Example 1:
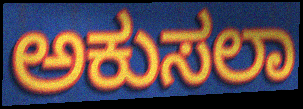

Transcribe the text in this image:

ಅಕುಸಲಾ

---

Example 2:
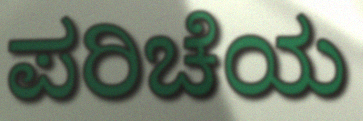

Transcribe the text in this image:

ಪರಿಚೆಯ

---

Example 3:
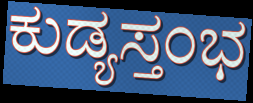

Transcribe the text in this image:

ಕುಡ್ಯಸ್ತಂಭ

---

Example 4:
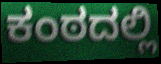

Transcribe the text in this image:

ಕಂಠದಲ್ಲಿ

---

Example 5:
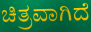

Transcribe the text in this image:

ಚಿತ್ರವಾಗಿದೆ